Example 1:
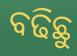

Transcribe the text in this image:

ବଢିଛୁ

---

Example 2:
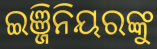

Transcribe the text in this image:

ଇଞ୍ଜିନିୟରଙ୍କୁ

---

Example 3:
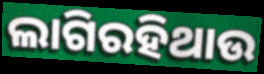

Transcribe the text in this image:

ଲାଗିରହିଥାଉ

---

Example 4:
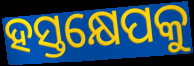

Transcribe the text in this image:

ହସ୍ତକ୍ଷେପକୁ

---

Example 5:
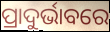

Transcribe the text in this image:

ପ୍ରାଦୁର୍ଭାବରେ